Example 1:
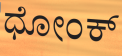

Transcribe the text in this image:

ಧೋಂಕ್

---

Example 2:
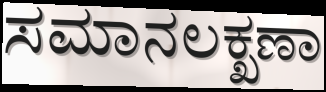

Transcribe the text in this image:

ಸಮಾನಲಕ್ಖಣಾ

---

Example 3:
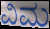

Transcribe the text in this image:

ವಿಮ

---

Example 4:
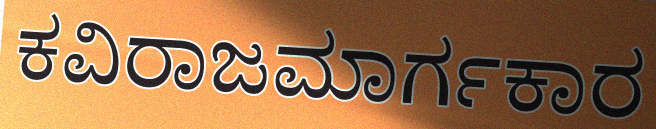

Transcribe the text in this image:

ಕವಿರಾಜಮಾರ್ಗಕಾರ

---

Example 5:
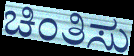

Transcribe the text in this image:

ಚಿಂತಿಸು